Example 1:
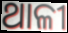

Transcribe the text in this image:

ଥାଳୀ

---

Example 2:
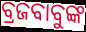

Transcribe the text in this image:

ବ୍ରଜବାବୁଙ୍କ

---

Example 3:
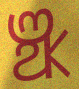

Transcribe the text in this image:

ଞ୍ଝ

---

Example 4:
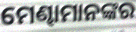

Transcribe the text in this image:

ମେଣ୍ଢାମାନଙ୍କର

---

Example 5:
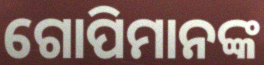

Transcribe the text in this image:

ଗୋପିମାନଙ୍କ